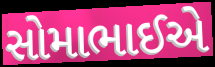
સોમાભાઈએ